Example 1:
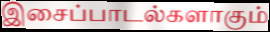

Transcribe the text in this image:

இசைப்பாடல்களாகும்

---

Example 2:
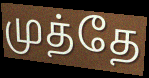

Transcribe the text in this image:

முத்தே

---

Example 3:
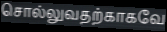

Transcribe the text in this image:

சொல்லுவதற்காகவே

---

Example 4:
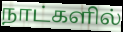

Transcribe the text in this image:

நாட்களில்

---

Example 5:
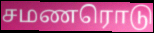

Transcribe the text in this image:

சமணரொடு